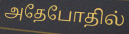
அதேபோதில்